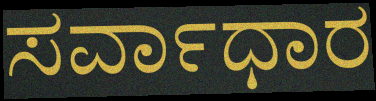
ಸರ್ವಾಧಾರ